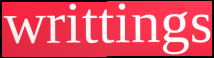
writtings